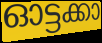
ഓട്ടക്കാ